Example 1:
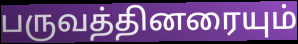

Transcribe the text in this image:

பருவத்தினரையும்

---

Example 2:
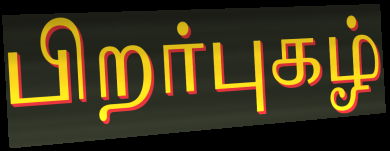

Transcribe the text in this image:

பிறர்புகழ்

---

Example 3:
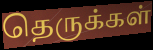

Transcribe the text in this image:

தெருக்கள்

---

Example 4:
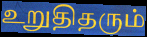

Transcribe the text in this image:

உறுதிதரும்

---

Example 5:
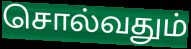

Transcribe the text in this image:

சொல்வதும்